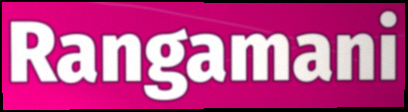
Rangamani